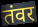
तंवर